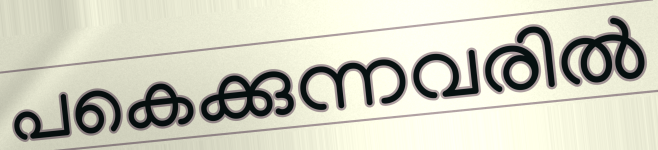
പകെക്കുന്നവരിൽ